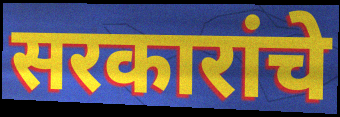
सरकारांचे